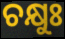
ଚକ୍ଷୁଃ